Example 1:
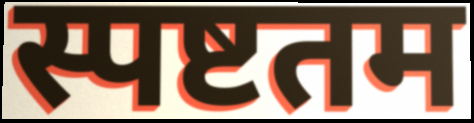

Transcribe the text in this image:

स्पष्टतम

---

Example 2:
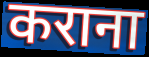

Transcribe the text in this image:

कराना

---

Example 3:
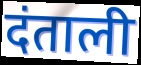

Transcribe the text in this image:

दंताली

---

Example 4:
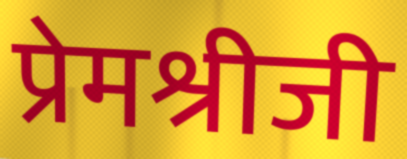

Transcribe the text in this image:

प्रेमश्रीजी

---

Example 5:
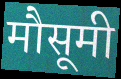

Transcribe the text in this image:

मौसूमी